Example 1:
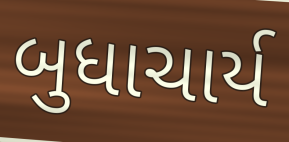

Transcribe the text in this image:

બુધાચાર્ય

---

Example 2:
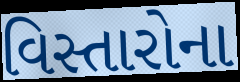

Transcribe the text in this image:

વિસ્તારોના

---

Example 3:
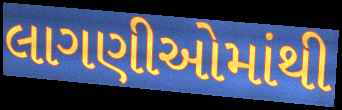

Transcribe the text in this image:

લાગણીઓમાંથી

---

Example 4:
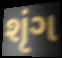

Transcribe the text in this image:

શૃંગ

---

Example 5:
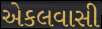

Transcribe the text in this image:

એકલવાસી